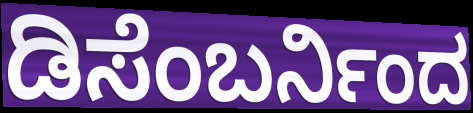
ಡಿಸೆಂಬರ್ನಿಂದ